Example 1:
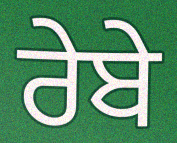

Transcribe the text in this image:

ਰੇਬੇ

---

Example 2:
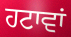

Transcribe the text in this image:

ਹਟਾਵਾਂ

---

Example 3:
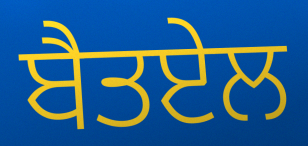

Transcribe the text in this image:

ਬੈਤਏਲ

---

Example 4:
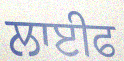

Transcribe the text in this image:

ਲਾਈਫ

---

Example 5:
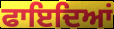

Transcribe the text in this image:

ਫਾਇਦਿਆਂ